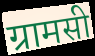
ग्रामसी